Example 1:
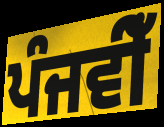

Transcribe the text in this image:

ਪੰਜਵੀਁ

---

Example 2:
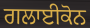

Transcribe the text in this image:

ਗਲਾਈਕੋਨ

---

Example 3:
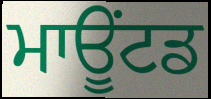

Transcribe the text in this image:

ਮਾਊਂਟਡ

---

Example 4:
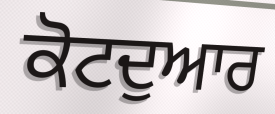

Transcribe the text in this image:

ਕੋਟਦੁਆਰ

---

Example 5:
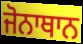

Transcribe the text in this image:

ਜੋਨਾਥਾਨ